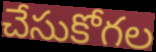
చేసుకోగల